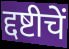
द्दष्टीचें